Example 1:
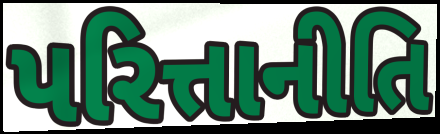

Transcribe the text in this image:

પરિત્તાનીતિ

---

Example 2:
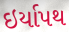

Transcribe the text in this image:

ઇર્યાપથ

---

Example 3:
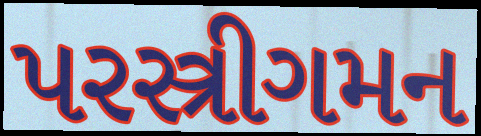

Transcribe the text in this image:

પરસ્ત્રીગમન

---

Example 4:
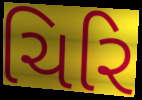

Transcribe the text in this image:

ચિરિ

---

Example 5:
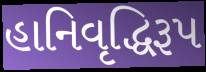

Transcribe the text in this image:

હાનિવૃદ્ધિરૂપ